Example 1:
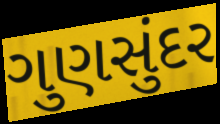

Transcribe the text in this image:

ગુણસુંદર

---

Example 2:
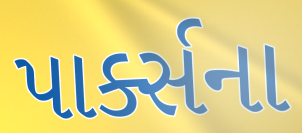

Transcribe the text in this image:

પાર્ક્સના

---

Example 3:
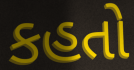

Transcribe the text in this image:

કહતો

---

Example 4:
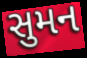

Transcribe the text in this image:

સુમન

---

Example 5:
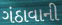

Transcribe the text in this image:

ગંઠાવાની